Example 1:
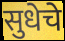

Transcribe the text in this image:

सुधेचे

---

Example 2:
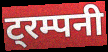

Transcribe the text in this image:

ट्रम्पनी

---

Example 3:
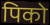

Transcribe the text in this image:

पिको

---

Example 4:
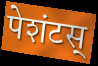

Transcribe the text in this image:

पेशंटस्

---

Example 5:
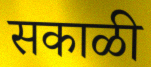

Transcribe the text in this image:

सकाळी